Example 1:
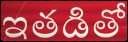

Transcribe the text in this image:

ఇతడితో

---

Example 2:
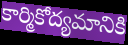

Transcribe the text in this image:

కార్మికోద్యమానికి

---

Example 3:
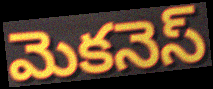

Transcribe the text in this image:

మెకనెస్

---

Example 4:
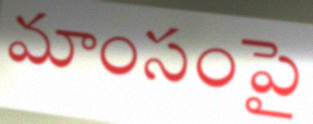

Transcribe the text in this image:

మాంసంపై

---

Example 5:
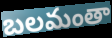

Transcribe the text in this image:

బలమంతా